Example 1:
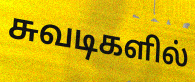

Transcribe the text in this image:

சுவடிகளில்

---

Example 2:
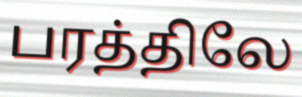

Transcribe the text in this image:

பரத்திலே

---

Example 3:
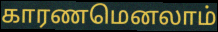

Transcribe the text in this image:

காரணமெனலாம்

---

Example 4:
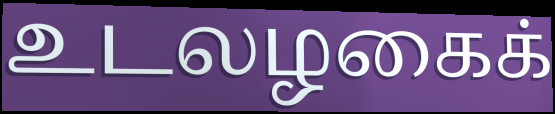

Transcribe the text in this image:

உடலழகைக்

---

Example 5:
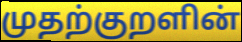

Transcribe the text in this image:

முதற்குறளின்